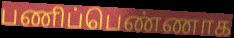
பணிப்பெண்ணாக